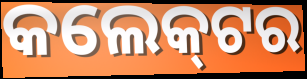
କଲେକ୍‌ଟର